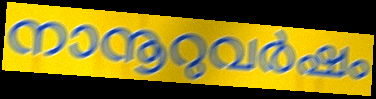
നാനൂറുവർഷം